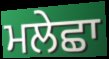
ਮਲੇਛਾ